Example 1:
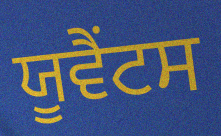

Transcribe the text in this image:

ਯੂਵੈਂਟਸ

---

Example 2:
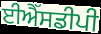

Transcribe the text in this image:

ਈਐੱਸਡੀਪੀ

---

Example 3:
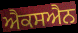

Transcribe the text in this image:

ਐਕਸਐਨ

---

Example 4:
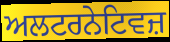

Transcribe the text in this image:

ਅਲਟਰਨੇਟਿਵਜ਼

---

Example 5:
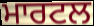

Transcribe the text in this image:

ਮਾਰਟਲ